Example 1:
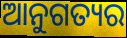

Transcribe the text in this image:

ଆନୁଗତ୍ୟର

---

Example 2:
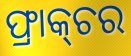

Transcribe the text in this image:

ଫ୍ରାକ୍‌ଚର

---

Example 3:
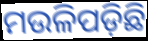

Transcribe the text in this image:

ମଉଳିପଡ଼ିଛି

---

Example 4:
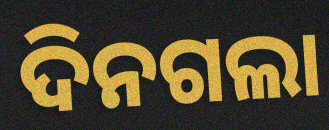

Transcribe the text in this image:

ଦିନଗଲା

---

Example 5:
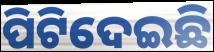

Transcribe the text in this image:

ପିଟିଦେଇଛି